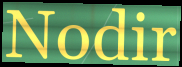
Nodir